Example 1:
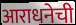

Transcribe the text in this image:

आराधनेची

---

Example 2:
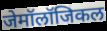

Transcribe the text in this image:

जेमॉलॉजिकल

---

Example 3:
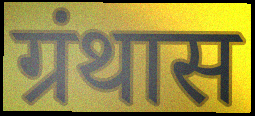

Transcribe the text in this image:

ग्रंथास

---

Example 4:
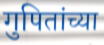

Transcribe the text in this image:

गुपितांच्या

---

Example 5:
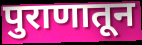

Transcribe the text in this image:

पुराणातून